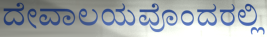
ದೇವಾಲಯವೊಂದರಲ್ಲಿ